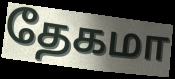
தேகமா